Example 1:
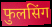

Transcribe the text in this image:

फुलसिंग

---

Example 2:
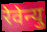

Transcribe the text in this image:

रेवेन्यु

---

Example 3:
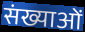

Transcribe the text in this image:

संख्याओं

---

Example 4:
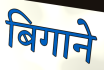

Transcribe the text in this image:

बिगाने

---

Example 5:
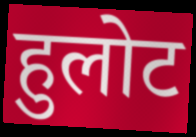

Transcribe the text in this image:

हुलोट